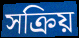
সক্ৰিয়